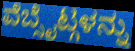
ವೆಬ್ಸೈಟ್ಗಳನ್ನು